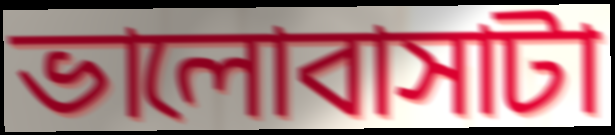
ভালোবাসাটা